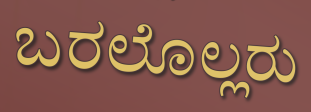
ಬರಲೊಲ್ಲರು